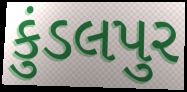
કુંડલપુર